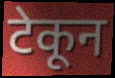
टेकून